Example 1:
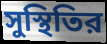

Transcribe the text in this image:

সুস্থিতির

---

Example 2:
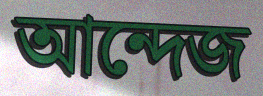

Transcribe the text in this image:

আন্দেজ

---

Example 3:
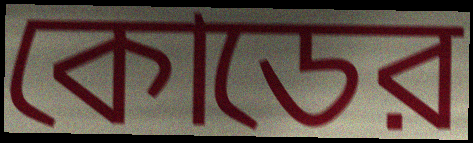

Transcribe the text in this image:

কোডের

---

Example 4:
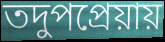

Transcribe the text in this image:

তদুপপ্রেয়ায়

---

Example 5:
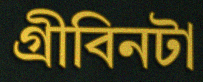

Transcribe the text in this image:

গ্রীবিনটা